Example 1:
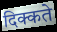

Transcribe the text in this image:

दिक्कते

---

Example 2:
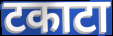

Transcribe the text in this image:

टकाटा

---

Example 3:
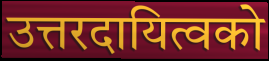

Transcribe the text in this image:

उत्तरदायित्वको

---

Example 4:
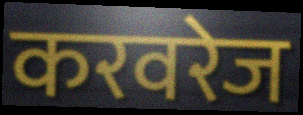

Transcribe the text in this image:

करवरेज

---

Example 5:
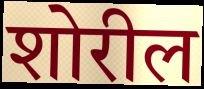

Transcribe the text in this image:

शोरील